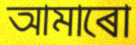
আমাৰো